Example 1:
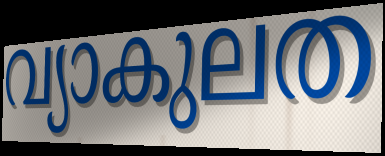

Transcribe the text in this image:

വ്യാകുലത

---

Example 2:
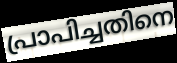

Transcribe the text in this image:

പ്രാപിച്ചതിനെ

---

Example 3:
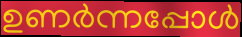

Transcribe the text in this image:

ഉണർന്നപ്പോൾ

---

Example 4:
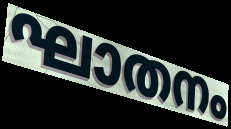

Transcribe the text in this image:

ഘാതനം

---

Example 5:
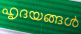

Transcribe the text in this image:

ഹൃദയങ്ങൾ